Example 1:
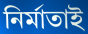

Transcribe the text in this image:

নির্মাতাই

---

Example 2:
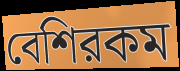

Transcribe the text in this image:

বেশিরকম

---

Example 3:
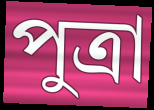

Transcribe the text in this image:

পুত্রা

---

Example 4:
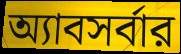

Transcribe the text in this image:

অ্যাবসর্বার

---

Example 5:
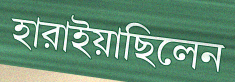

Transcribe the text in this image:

হারাইয়াছিলেন